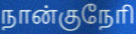
நான்குநேரி